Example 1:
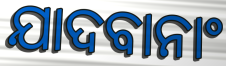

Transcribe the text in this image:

ଯାଦବାନାଂ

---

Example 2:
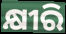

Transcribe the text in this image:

କ୍ଷୀରି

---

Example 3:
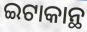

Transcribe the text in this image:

ଇଟାକାନ୍ଥ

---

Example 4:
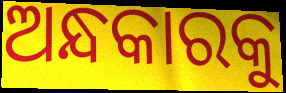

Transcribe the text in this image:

ଅନ୍ଧକାରକୁ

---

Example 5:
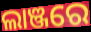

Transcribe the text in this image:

ଲାଞ୍ଜରେ